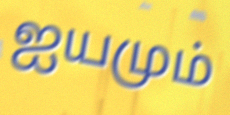
ஐயமும்